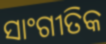
ସାଂଗୀତିକ